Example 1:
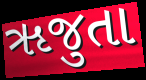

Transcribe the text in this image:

ૠજુતા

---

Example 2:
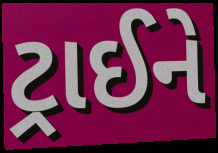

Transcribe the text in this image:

ટ્રાઈને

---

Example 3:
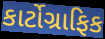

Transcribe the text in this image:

કાર્ટોગ્રાફિક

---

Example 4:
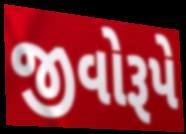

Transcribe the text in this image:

જીવોરૂપે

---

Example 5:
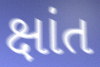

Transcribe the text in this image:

ક્ષાંત